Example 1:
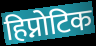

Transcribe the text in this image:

हिप्नोटिक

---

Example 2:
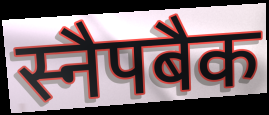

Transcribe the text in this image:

स्नैपबैक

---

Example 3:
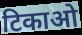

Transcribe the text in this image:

टिकाओ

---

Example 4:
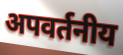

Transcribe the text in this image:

अपवर्तनीय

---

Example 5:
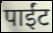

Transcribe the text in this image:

पाईंट